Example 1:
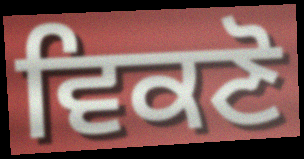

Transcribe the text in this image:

ਵਿਕਣੋ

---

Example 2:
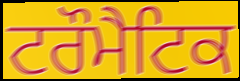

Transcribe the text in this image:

ਟਰੌਮੈਟਿਕ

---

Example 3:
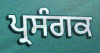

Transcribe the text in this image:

ਪ੍ਰਸੰਗਕ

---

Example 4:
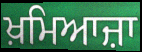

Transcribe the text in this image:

ਖ਼ਮਿਆਜ਼ਾ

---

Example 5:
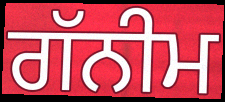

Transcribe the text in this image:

ਗੱਨੀਮ